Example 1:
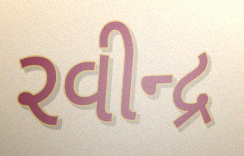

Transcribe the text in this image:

રવીન્દ્ર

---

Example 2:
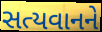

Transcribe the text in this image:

સત્યવાનને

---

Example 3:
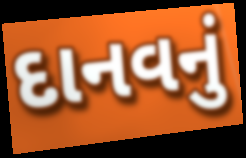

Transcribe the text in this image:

દાનવનું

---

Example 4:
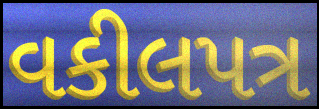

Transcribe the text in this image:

વકીલપત્ર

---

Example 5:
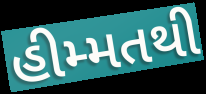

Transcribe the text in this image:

હીમ્મતથી